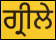
ਗ੍ਰੀਲੇ